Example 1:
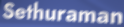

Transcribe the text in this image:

Sethuraman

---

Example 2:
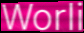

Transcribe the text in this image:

Worli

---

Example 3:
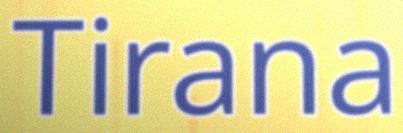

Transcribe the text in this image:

Tirana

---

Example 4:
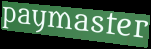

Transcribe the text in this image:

paymaster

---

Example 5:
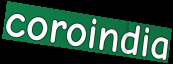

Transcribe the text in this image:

coroindia